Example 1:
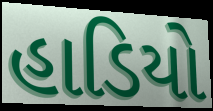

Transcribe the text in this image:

હાડિયો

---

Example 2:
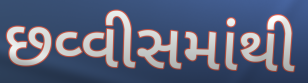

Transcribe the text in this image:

છવ્વીસમાંથી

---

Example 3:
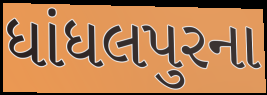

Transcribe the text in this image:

ધાંધલપુરના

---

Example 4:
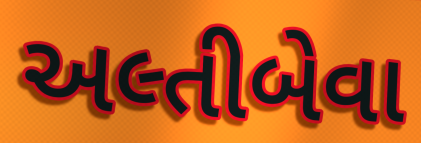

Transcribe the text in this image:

અલ્તીબેવા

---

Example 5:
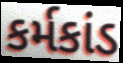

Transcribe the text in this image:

કર્મકાંડ